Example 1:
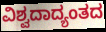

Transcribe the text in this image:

ವಿಶ್ವದಾದ್ಯಂತದ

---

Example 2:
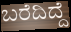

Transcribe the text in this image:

ಬರೆದಿದ್ದೆ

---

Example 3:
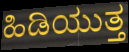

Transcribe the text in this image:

ಹಿಡಿಯುತ್ತ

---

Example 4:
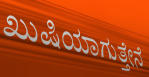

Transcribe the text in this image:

ಖುಷಿಯಾಗುತ್ತೇನೆ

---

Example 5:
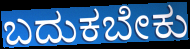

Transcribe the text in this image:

ಬದುಕಬೇಕು